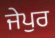
ਜੇਪੁਰ